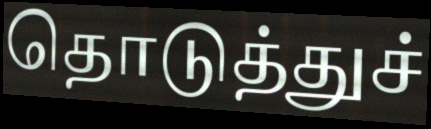
தொடுத்துச்